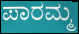
ಪಾರಮ್ಮ